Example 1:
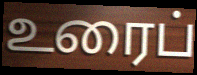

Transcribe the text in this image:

உரைப்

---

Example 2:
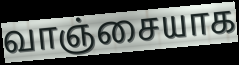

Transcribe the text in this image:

வாஞ்சையாக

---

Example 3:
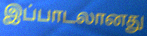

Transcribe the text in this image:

இப்பாடலானது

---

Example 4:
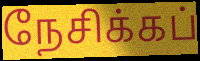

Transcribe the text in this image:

நேசிக்கப்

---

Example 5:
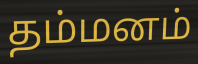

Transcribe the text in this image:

தம்மனம்